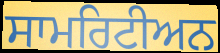
ਸਾਮਰਿਟੀਅਨ